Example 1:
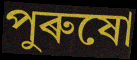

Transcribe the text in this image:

পুৰুষো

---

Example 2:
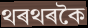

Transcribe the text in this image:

থৰথৰকৈ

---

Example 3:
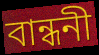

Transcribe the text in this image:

বান্ধনী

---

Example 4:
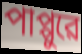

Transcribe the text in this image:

পাপ্পুৱে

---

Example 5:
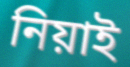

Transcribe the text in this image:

নিয়াই